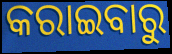
କରାଇବାରୁ